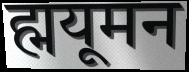
ह्मयूमन